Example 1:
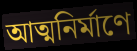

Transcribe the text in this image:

আত্মনির্মাণে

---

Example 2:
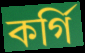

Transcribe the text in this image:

কর্গি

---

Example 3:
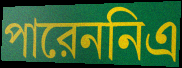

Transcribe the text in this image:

পারেননিএ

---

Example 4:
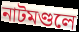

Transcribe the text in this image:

নাটমণ্ডলে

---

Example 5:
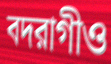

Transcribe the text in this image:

বদরাগীও